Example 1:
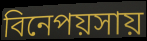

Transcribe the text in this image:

বিনেপয়সায়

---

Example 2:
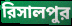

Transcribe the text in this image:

রিসালপুর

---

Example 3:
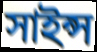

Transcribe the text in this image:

সাইন্স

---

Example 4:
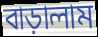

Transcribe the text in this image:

বাড়ালাম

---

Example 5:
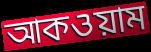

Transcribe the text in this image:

আকওয়াম